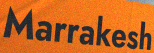
Marrakesh